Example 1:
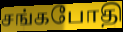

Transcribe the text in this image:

சங்கபோதி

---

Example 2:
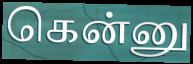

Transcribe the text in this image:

கென்னு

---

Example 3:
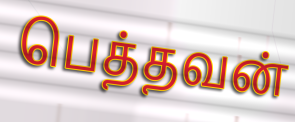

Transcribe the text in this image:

பெத்தவன்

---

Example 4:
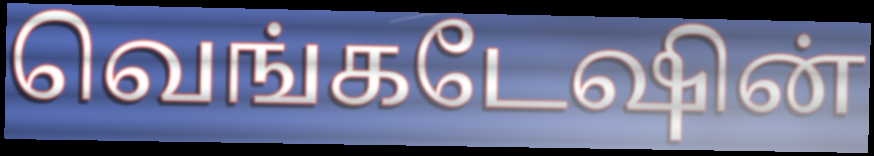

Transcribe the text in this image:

வெங்கடேஷின்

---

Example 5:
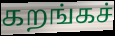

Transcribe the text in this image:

கறங்கச்